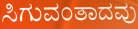
ಸಿಗುವಂತಾದವು